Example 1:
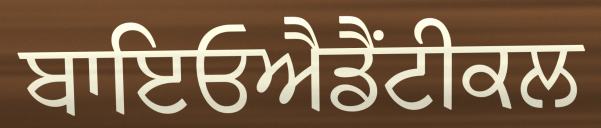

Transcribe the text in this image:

ਬਾਇਓਐਡੈਂਟੀਕਲ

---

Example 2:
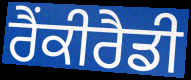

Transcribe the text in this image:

ਰੈਂਕੀਰੈਡੀ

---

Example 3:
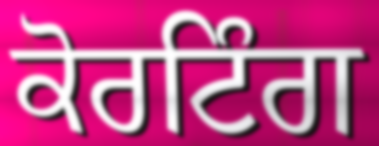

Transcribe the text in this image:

ਕੋਰਟਿੰਗ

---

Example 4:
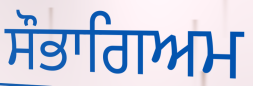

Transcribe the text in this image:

ਸੌਭਾਗਿਅਮ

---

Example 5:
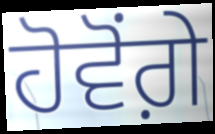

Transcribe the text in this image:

ਹੋਵੋਂਗ਼ੇ